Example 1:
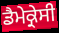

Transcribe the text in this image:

ਡੈਮੇਕ੍ਰੇਸੀ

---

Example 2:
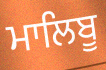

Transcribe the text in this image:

ਮਾਲਿਬੂ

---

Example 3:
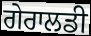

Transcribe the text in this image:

ਗੇਰਾਲਡੀ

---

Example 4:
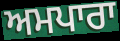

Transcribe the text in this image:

ਅਮਪਾਰਾ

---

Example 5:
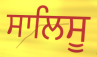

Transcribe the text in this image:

ਸਾਲਿਸੂ